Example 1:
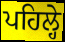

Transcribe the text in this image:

ਪਹਿਲ੍ਹੇ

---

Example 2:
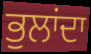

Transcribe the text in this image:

ਭੁਲਾਂਦਾ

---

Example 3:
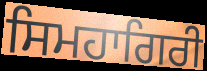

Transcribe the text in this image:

ਸਿਮਹਾਗਿਰੀ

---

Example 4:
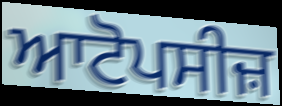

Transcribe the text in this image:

ਆਟੋਪਸੀਜ਼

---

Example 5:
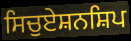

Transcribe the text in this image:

ਸਿਚੁਏਸ਼ਨਸ਼ਿਪ